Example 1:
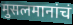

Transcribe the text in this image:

मुसलमानांचं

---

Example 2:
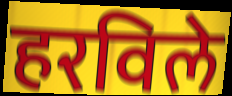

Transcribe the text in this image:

हरविले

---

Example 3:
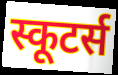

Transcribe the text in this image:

स्कूटर्स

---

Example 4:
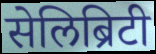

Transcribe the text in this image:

सेलिब्रिटी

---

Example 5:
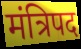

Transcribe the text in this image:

मंत्रिपद